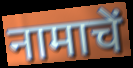
नामाचें